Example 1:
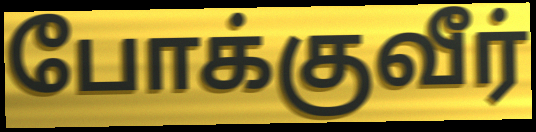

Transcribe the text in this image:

போக்குவீர்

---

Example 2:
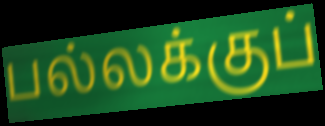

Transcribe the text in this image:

பல்லக்குப்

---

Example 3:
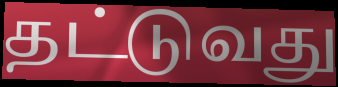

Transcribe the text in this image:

தட்டுவது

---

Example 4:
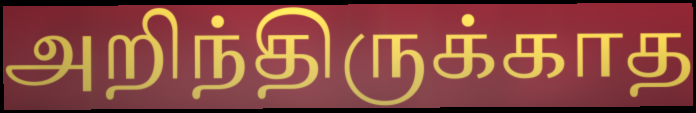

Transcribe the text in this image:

அறிந்திருக்காத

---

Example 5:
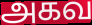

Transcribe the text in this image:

அகவ